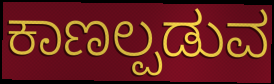
ಕಾಣಲ್ಪಡುವ